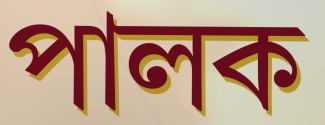
পালক